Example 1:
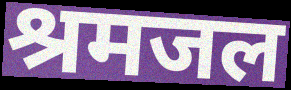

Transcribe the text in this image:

श्रमजल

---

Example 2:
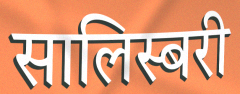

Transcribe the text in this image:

सालिस्बरी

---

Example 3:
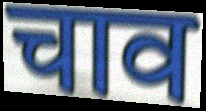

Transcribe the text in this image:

चाव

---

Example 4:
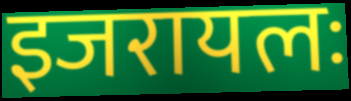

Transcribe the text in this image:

इजरायलः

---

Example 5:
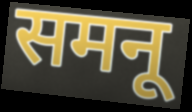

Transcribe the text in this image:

समनू